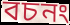
বচনং